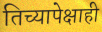
तिच्यापेक्षाही